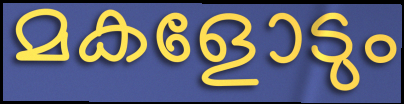
മകളോടും